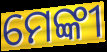
ମେଙ୍କୀ